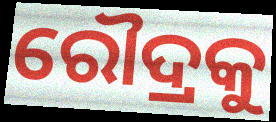
ରୌଦ୍ରକୁ